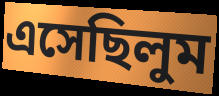
এসেছিলুম